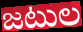
జటుల